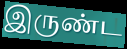
இருண்ட